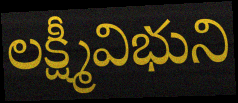
లక్ష్మీవిభుని